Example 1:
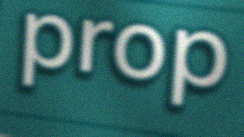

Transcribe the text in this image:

prop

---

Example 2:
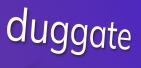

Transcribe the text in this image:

duggate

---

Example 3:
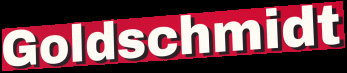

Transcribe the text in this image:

Goldschmidt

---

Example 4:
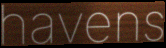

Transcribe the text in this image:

havens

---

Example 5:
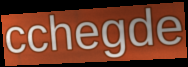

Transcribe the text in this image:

cchegde